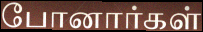
போனார்கள்